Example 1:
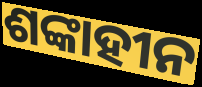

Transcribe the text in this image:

ଶଙ୍କାହୀନ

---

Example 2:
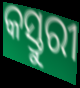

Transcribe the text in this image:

କସ୍ତୁରୀ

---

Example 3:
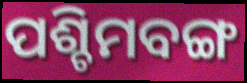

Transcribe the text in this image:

ପଶ୍ଚିମବଙ୍ଗ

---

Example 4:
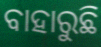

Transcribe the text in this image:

ବାହାରୁଛି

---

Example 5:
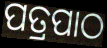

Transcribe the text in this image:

ପତ୍ରପାଠ